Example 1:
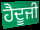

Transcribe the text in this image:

ਹੈਦੂਜੀ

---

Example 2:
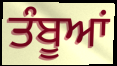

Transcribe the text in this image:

ਤੰਬੂਆਂ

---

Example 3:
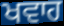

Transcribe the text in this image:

ਖਵਾਹ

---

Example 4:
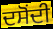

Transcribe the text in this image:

ਦਸੋਂਦੀ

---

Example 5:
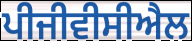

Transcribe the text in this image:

ਪੀਜੀਵੀਸੀਐਲ